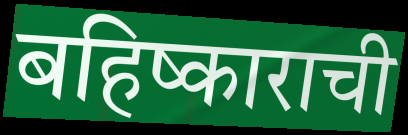
बहिष्काराची